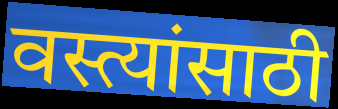
वस्त्यांसाठी